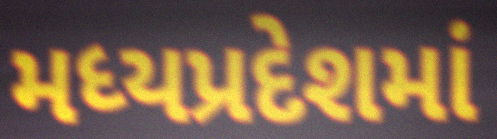
મધ્યપ્રદેશમાં